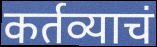
कर्तव्याचं